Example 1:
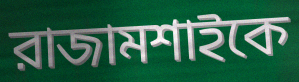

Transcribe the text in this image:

রাজামশাইকে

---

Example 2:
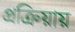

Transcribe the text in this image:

প্রক্রিয়ায়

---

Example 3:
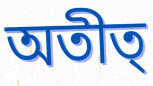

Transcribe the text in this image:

অতীত্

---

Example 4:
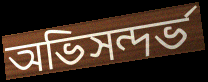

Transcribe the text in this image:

অভিসন্দর্ভ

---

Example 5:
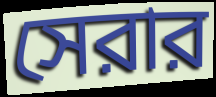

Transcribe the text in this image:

সেরার